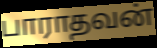
பாராதவன்